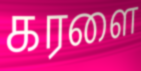
கரளை